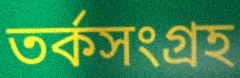
তর্কসংগ্রহ